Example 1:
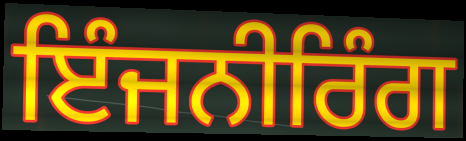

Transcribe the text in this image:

ਇੰਜਨੀਰਿੰਗ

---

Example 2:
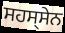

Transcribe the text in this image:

ਸਹਸ੍ਸੇਨ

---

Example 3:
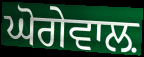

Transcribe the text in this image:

ਘੋਗੇਵਾਲ਼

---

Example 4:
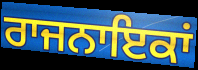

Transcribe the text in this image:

ਰਾਜਨਾਇਕਾਂ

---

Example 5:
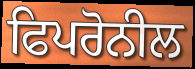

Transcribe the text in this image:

ਫਿਪਰੋਨੀਲ